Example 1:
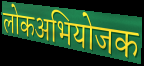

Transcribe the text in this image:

लोकअभियोजक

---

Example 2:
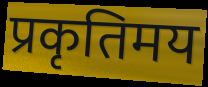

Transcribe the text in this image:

प्रकृतिमय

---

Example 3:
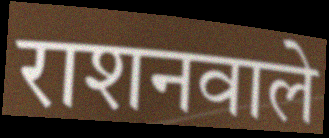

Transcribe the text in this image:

राशनवाले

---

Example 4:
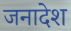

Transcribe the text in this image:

जनादेश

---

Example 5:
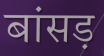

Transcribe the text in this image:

बांसड़